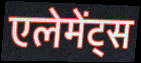
एलेमेंट्स